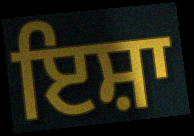
ਇਸ਼ਾ